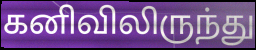
கனிவிலிருந்து